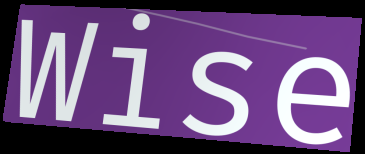
Wise